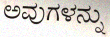
ಅವುಗಳನ್ನು